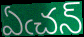
ఏఁచన్